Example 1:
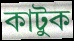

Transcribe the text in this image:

কাটুক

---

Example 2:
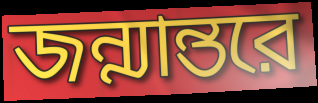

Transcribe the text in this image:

জন্মান্তরে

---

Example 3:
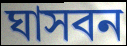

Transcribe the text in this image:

ঘাসবন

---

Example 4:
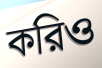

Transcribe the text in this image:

করিও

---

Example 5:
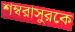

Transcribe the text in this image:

শম্বরাসুরকে